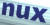
nux